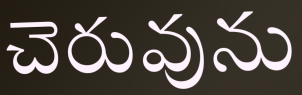
చెరువును